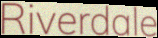
Riverdale